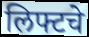
लिफ्टचे